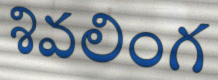
శివలింగ